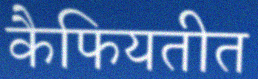
कैफियतीत